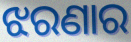
ଝରଣାର